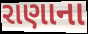
રાણાના